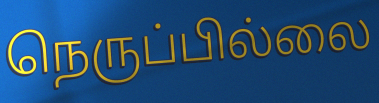
நெருப்பில்லை